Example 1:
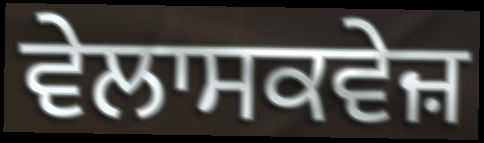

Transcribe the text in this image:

ਵੇਲਾਸਕਵੇਜ਼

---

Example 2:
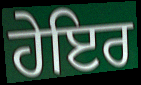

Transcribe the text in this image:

ਹੇਇਰ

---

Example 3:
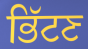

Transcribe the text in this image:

ਭਿੱਟਣ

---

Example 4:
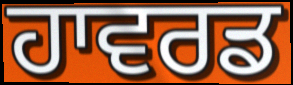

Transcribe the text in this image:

ਹਾਵਰਡ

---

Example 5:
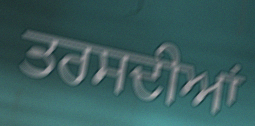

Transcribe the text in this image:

ਤਰਸਦੀਆਂ